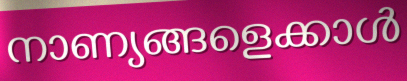
നാണ്യങ്ങളെക്കാൾ